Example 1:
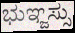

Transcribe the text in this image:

ಭುಞ್ಜಸ್ಸು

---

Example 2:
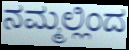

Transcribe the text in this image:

ನಮ್ಮಲ್ಲಿಂದ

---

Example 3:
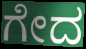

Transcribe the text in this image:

ಗೇದ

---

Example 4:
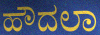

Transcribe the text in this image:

ಹೌದಲಾ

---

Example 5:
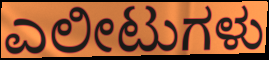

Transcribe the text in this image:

ಎಲೀಟುಗಳು